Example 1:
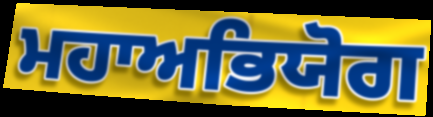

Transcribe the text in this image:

ਮਹਾਅਭਿਯੋਗ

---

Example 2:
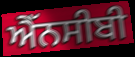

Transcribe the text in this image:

ਐੱਨਸੀਬੀ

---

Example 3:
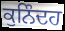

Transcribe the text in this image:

ਕੁਨਿੰਦਹ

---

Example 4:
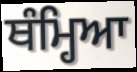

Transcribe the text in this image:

ਥੰਮ੍ਹ੍ਹਿਆ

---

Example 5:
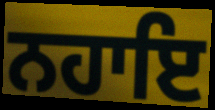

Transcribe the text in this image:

ਨਹਾਇ